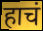
हाचं